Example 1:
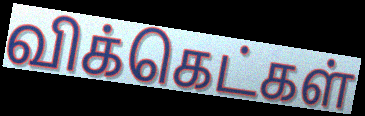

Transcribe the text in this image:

விக்கெட்கள்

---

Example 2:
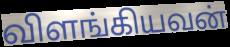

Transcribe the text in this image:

விளங்கியவன்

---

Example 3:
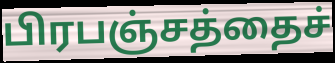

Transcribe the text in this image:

பிரபஞ்சத்தைச்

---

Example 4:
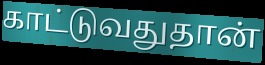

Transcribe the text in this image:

காட்டுவதுதான்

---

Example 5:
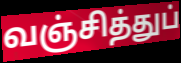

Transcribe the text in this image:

வஞ்சித்துப்